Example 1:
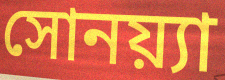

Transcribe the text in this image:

সোনয়্যা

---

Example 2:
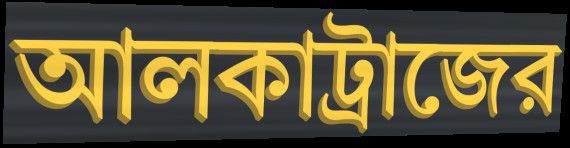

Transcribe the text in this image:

আলকাট্রাজের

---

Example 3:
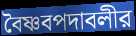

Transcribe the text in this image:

বৈষ্ণবপদাবলীর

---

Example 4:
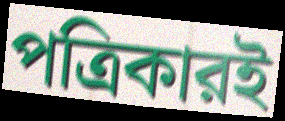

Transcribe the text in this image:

পত্রিকারই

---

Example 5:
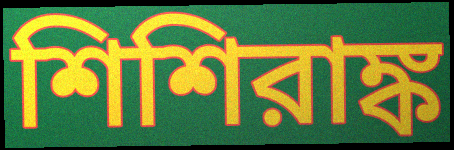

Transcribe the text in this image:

শিশিরাঙ্ক